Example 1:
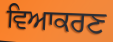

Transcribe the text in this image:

ਵਿਆਕਰਣ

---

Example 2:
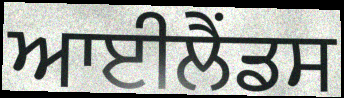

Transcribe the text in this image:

ਆਈਲੈਂਡਸ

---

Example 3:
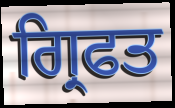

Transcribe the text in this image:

ਗ੍ਰਿਫਤ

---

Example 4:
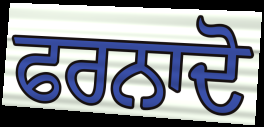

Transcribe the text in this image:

ਫਰਨਾਦੋ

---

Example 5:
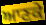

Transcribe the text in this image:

ਆਣਕੇ